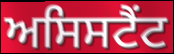
ਅਸਿਸਟੈਂਟ